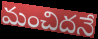
మంచిదనే